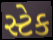
સ્ટેક